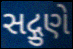
સદ્ગુણે